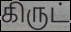
கிருட்